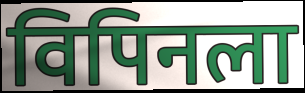
विपिनला